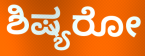
ಶಿಷ್ಯರೋ